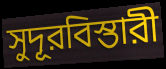
সুদূরবিস্তারী